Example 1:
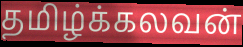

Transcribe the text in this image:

தமிழ்க்கலவன்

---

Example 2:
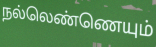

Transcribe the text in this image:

நல்லெண்ணெயும்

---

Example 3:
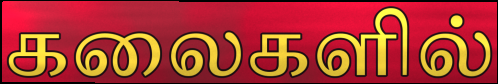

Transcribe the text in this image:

கலைகளில்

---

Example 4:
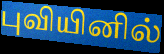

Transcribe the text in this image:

புவியினில்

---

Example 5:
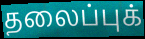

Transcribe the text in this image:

தலைப்புக்